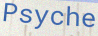
Psyche